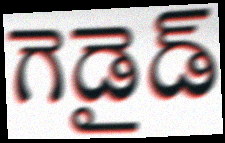
గెడైడ్